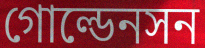
গোল্ডেনসন